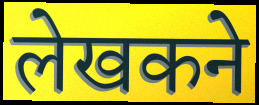
लेखकने